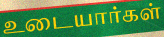
உடையார்கள்